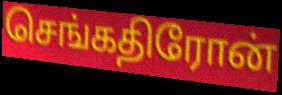
செங்கதிரோன்